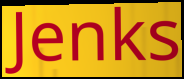
Jenks